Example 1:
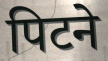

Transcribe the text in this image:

पिटने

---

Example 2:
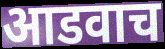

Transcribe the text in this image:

आडवाच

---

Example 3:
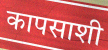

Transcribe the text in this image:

कापसाशी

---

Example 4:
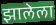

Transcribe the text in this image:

झालेला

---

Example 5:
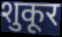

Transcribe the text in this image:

शुकूर